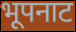
भूपनाट